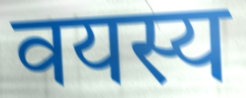
वयस्य